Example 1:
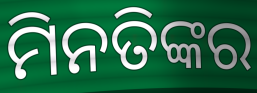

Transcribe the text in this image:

ମିନତିଙ୍କର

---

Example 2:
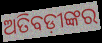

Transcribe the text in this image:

ଅତିବଡ଼ୀଙ୍କର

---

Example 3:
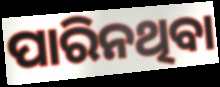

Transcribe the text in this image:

ପାରିନଥିବା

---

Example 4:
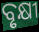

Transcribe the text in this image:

ବୃକ୍ଷୀ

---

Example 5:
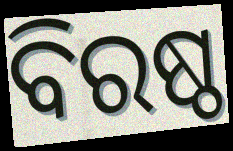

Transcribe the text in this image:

ବିରଷ୍ଠ